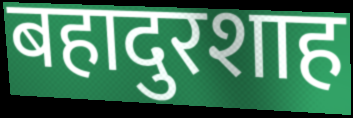
बहादुरशाह